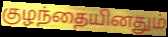
குழந்தையினதும்